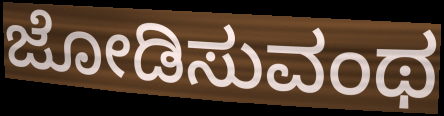
ಜೋಡಿಸುವಂಥ